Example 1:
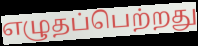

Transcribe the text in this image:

எழுதப்பெற்றது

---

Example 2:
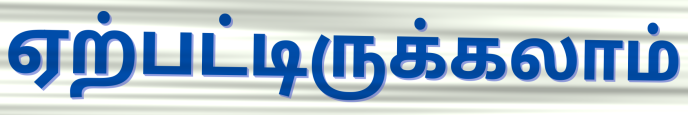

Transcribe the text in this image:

ஏற்பட்டிருக்கலாம்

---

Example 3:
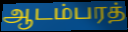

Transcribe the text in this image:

ஆடம்பரத்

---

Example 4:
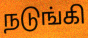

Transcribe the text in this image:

நடுங்கி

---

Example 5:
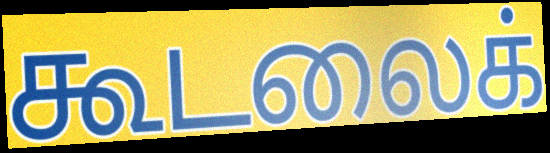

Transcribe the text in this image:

கூடலைக்